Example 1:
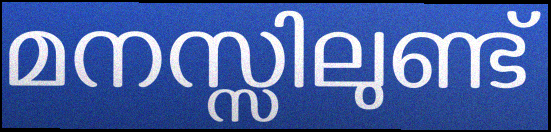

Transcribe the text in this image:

മനസ്സിലുണ്ട്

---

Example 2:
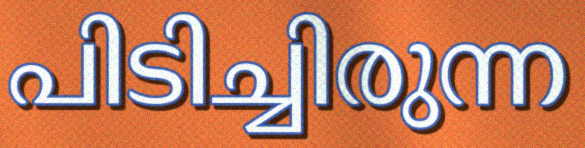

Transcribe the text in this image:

പിടിച്ചിരുന്ന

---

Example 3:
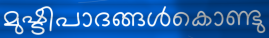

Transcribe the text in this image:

മുഷ്ടിപാദങ്ങൾകൊണ്ടു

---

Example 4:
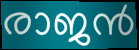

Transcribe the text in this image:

രാജൻ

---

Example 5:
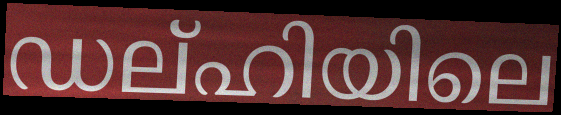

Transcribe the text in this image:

ഡല്ഹിയിലെ